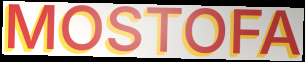
MOSTOFA